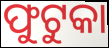
ଫୁଟୁକା